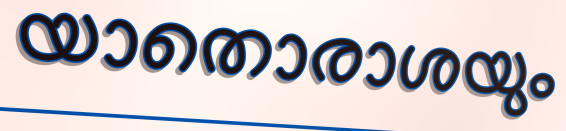
യാതൊരാശയും